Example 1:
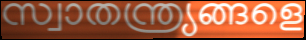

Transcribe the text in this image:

സ്വാതന്ത്ര്യങ്ങളെ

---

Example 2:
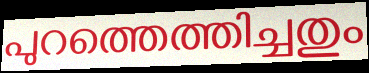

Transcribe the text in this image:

പുറത്തെത്തിച്ചതും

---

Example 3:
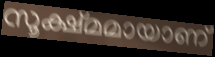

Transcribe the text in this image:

സൂക്ഷ്മമായാണ്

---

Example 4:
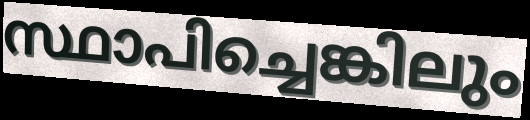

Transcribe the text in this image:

സ്ഥാപിച്ചെങ്കിലും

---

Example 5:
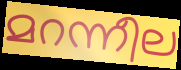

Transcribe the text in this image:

മറന്നീല